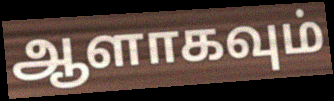
ஆளாகவும்